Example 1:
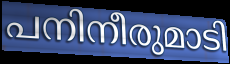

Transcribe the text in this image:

പനിനീരുമാടി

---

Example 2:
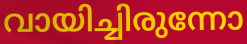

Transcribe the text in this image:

വായിച്ചിരുന്നോ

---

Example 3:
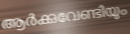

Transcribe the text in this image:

ആർക്കുവേണ്ടിയും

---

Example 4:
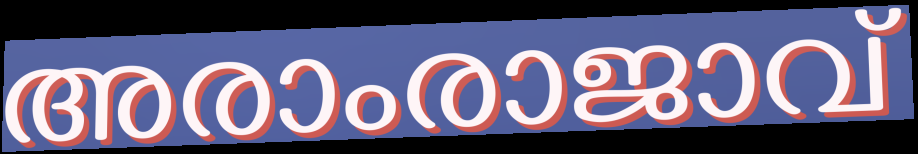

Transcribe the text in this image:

അരാംരാജാവ്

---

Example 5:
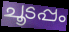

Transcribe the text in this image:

ചൂടപ്പം